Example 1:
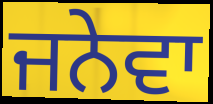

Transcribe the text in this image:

ਜਨੇਵਾ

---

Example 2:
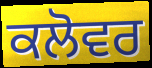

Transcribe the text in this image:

ਕਲੋਵਰ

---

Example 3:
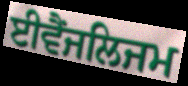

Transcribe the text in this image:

ਈਵੈਂਜਲਿਜਮ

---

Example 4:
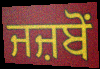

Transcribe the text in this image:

ਜਜ਼ਬੋਂ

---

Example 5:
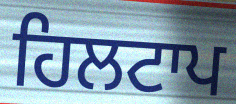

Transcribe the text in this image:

ਹਿਲਟਾਪ